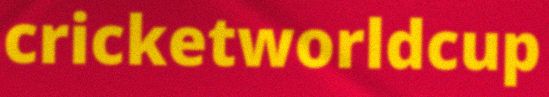
cricketworldcup